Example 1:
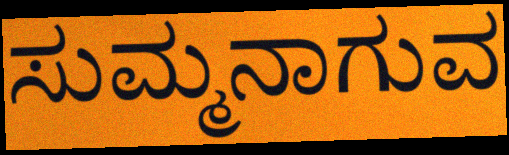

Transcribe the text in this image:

ಸುಮ್ಮನಾಗುವ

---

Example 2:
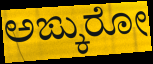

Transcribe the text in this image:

ಅಙ್ಕುರೋ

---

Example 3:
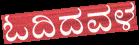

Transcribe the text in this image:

ಓದಿದವಳ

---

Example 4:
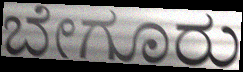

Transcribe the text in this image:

ಬೇಗೂರು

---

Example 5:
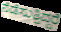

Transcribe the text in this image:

ನೆಡೆಸುತ್ತಿದ್ದರೆ